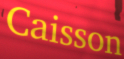
Caisson